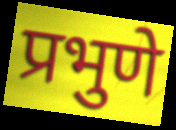
प्रभुणे